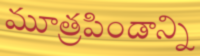
మూత్రపిండాన్ని